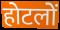
होटलों